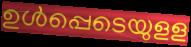
ഉൾപ്പെടെയുളള